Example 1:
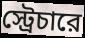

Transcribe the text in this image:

স্ট্রেচারে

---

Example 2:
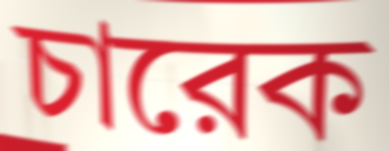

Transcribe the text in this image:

চারেক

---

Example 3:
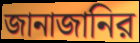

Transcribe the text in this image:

জানাজানির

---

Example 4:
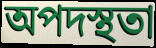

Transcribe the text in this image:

অপদস্থতা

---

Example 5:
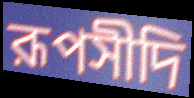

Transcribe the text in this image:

রূপসীদি